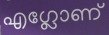
എഗ്ലോണ്